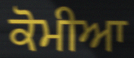
ਕੋਮੀਆ